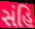
સંહિ